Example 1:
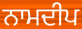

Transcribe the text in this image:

ਨਾਮਦੀਪ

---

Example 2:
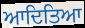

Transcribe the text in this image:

ਆਦਿਤਿਆ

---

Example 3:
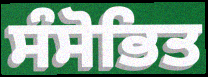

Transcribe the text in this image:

ਸੰਸੋਭਿਤ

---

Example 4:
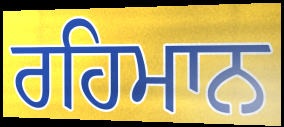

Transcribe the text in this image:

ਰਹਿਮਾਨ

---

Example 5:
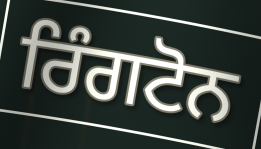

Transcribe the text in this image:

ਰਿੰਗਟੋਨ